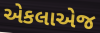
એકલાએજ